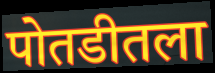
पोतडीतला